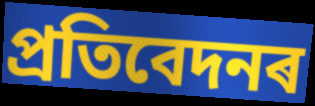
প্ৰতিবেদনৰ